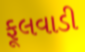
ફૂલવાડી